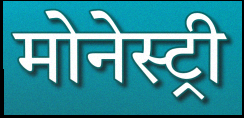
मोनेस्‍ट्री